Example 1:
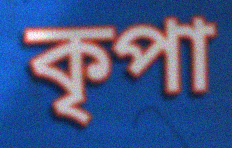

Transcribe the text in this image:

কৃপা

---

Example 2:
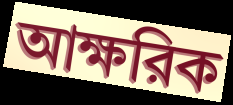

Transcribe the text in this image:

আক্ষরিক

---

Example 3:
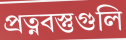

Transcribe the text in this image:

প্রত্নবস্তুগুলি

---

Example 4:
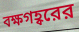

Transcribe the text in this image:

বক্ষগহ্বরের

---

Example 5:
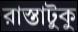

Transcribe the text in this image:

রাস্তাটুকু